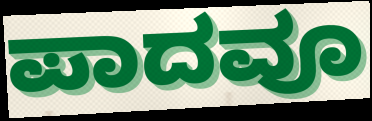
ಪಾದವೂ